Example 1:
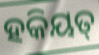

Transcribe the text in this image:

ହକିୟତ୍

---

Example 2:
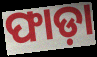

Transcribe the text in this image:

ଫାଡ଼ା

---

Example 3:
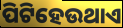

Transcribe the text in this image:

ପିଟିହେଉଥାଏ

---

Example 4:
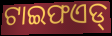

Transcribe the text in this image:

ଟାଇଫଏଡ୍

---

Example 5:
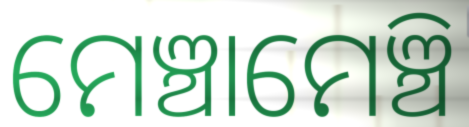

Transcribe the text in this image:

ମେଞ୍ଚାମେଞ୍ଚି